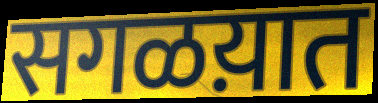
सगळय़ात